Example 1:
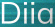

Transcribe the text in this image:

Diia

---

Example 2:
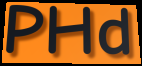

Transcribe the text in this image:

PHd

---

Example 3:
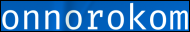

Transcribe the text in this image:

onnorokom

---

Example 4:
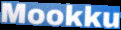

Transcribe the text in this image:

Mookku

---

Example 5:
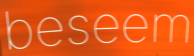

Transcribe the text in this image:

beseem